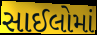
સાઈલોમાં